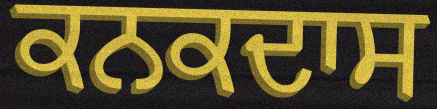
ਕਨਕਦਾਸ